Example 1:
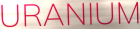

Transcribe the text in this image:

URANIUM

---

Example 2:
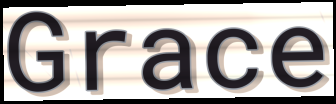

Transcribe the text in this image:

Grace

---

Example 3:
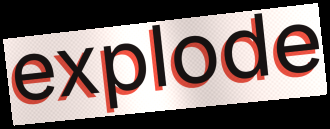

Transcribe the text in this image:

explode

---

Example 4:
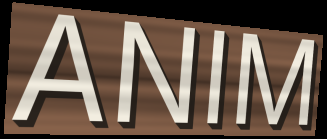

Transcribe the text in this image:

ANIM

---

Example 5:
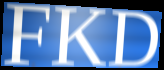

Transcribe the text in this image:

FKD